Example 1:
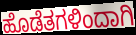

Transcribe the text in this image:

ಹೊಡೆತಗಳಿಂದಾಗಿ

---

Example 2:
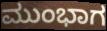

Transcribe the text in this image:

ಮುಂಭಾಗ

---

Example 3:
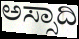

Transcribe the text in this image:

ಅಸ್ಸಾದಿ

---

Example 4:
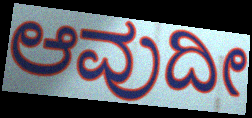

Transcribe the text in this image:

ಆವುದೀ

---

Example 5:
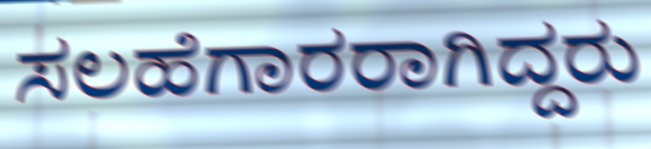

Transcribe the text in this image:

ಸಲಹೆಗಾರರಾಗಿದ್ದರು